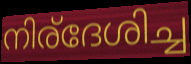
നിര്ദേശിച്ച